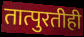
तात्पुरतीही